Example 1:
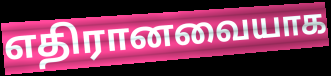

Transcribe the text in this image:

எதிரானவையாக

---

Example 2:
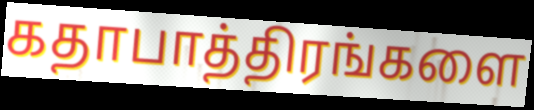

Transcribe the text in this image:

கதாபாத்திரங்களை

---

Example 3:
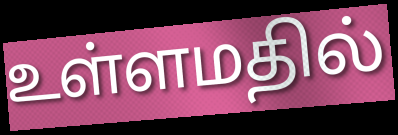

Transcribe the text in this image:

உள்ளமதில்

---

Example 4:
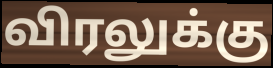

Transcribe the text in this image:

விரலுக்கு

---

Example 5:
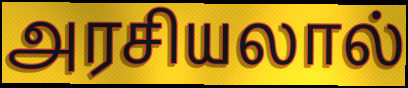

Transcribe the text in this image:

அரசியலால்